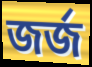
জৰ্জ